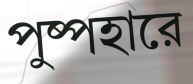
পুষ্পহারে